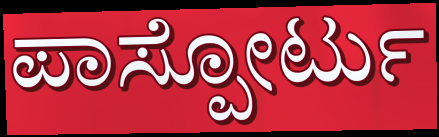
ಪಾಸ್ಪೋರ್ಟು